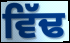
ਵਿੱਢ